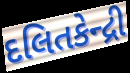
દલિતકેન્દ્રી